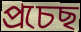
প্ৰচেছ